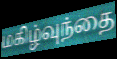
மகிழ்வுந்தை